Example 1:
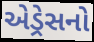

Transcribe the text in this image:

એડ્રેસનો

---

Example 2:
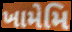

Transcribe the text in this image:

ખામેમિ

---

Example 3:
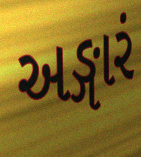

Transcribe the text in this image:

અઙ્ગારં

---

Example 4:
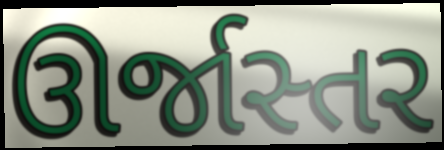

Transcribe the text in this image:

ઊર્જાસ્તર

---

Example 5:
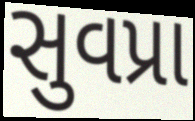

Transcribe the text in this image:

સુવપ્રા